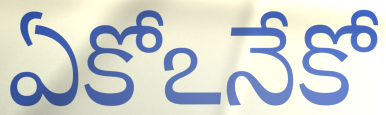
ఏకోఽనేకో